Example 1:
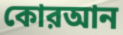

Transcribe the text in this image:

কোরআন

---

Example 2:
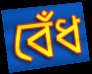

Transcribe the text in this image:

বেঁধ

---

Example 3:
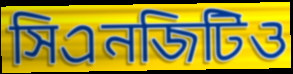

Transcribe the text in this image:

সিএনজিটিও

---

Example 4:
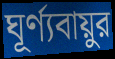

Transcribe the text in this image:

ঘূর্ণ্যবায়ুর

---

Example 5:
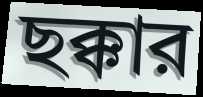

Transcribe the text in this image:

ছক্কার